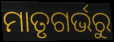
ମାତୃଗର୍ଭରୁ